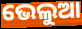
ଭେଲୁଆ